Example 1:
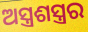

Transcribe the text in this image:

ଅସ୍ତ୍ରଶସ୍ତ୍ରର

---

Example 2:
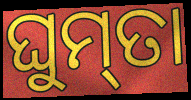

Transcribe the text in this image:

ଘୁମ୍‌ତା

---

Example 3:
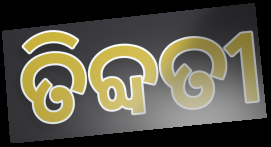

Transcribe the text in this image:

ତିବ୍ଦତୀ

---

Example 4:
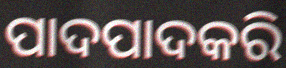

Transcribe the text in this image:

ପାଦପାଦକରି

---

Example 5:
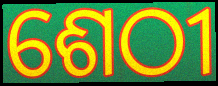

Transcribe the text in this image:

ଶେଠୀ